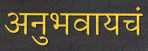
अनुभवायचं